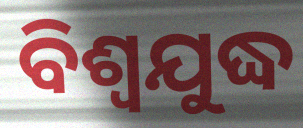
ବିଶ୍ୱଯୁଦ୍ଧ